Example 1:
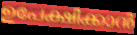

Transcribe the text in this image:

ഉപേക്ഷിക്കാൻ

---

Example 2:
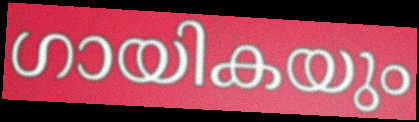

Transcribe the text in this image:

ഗായികയും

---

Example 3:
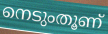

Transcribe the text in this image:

നെടുംതൂണ്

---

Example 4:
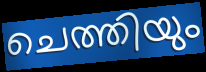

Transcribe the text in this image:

ചെത്തിയും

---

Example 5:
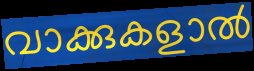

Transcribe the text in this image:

വാക്കുകളാൽ